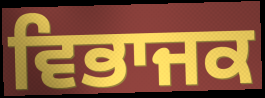
ਵਿਭਾਜਕ